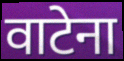
वाटेना